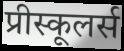
प्रीस्कूलर्स